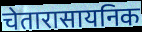
चेतारासायनिक